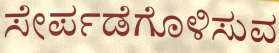
ಸೇರ್ಪಡೆಗೊಳಿಸುವ